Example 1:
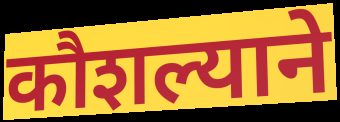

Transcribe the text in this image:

कौशल्याने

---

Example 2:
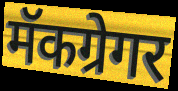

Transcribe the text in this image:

मॅकग्रेगर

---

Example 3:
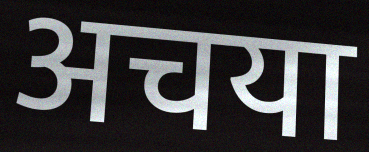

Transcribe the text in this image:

अचया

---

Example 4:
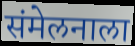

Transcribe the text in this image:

संमेलनाला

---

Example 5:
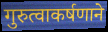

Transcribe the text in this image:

गुरुत्वाकर्षणाने